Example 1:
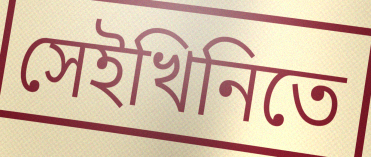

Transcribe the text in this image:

সেইখিনিতে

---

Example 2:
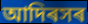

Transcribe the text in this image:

আদিৰসৰ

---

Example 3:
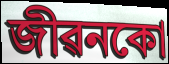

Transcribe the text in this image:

জীৱনকো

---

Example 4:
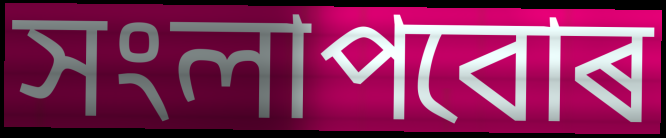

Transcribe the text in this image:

সংলাপবোৰ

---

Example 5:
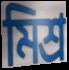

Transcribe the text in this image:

মিশ্ৰ